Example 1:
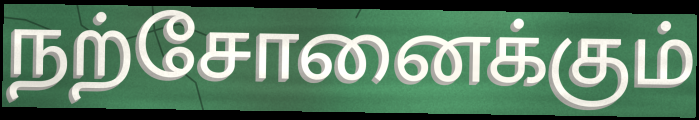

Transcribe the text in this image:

நற்சோனைக்கும்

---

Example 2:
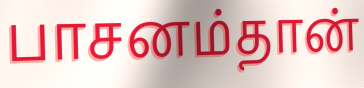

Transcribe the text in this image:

பாசனம்தான்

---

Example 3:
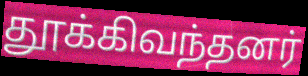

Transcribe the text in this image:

தூக்கிவந்தனர்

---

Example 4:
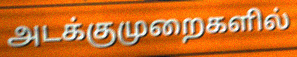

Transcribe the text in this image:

அடக்குமுறைகளில்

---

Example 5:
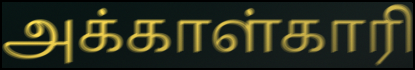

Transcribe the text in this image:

அக்காள்காரி